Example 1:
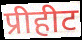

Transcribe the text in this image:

प्रीहीट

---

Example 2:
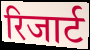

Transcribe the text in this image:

रिजार्ट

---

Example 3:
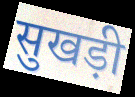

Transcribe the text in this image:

सुखड़ी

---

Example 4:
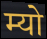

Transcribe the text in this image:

म्यो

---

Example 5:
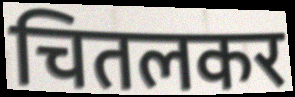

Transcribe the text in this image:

चितलकर